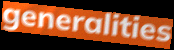
generalities